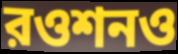
রওশনও